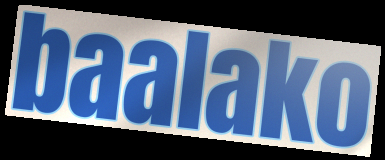
baalako